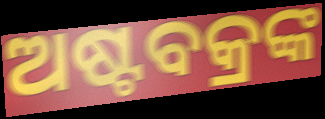
ଅଷ୍ଟବକ୍ରଙ୍କ